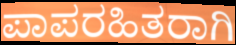
ಪಾಪರಹಿತರಾಗಿ